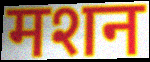
मशन